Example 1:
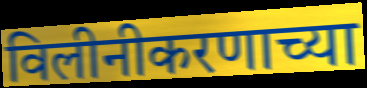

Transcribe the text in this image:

विलीनीकरणाच्या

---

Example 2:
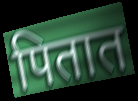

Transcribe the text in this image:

पितात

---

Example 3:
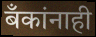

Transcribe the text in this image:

बँकांनाही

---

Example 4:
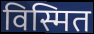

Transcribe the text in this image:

विस्मित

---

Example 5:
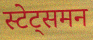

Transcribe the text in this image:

स्टेट्समन